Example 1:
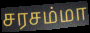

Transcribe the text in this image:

சரசம்மா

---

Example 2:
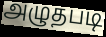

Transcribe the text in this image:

அழுதபடி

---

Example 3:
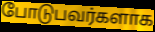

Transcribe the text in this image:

போடுபவர்களாக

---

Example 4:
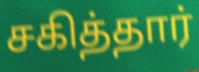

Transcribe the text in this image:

சகித்தார்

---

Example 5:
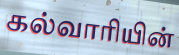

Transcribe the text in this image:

கல்வாரியின்